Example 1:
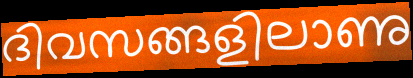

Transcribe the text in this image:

ദിവസങ്ങളിലാണു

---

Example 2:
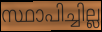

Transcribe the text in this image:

സ്ഥാപിച്ചില്ല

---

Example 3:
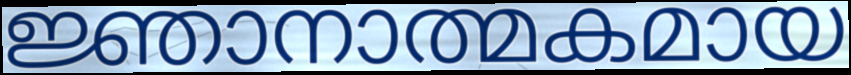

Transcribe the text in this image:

ജ്ഞാനാത്മകമായ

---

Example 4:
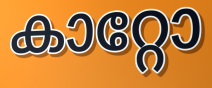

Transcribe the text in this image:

കാറ്റോ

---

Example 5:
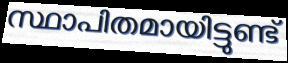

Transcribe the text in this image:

സ്ഥാപിതമായിട്ടുണ്ട്